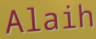
Alaih